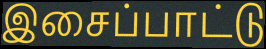
இசைப்பாட்டு